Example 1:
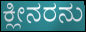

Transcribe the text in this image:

ಕ್ಲೀನರನು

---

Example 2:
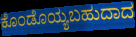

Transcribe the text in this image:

ಕೊಂಡೊಯ್ಯಬಹುದಾದ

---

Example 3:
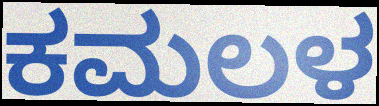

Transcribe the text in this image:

ಕಮಲಳ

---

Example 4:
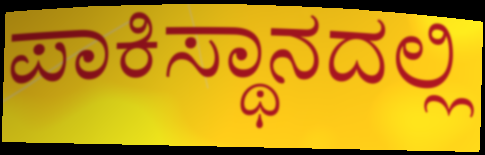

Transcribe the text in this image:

ಪಾಕಿಸ್ಥಾನದಲ್ಲಿ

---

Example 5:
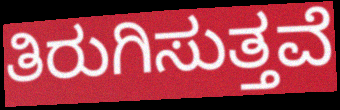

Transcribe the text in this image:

ತಿರುಗಿಸುತ್ತವೆ